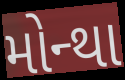
મોન્થા